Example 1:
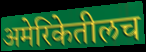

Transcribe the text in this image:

अमेरिकेतीलच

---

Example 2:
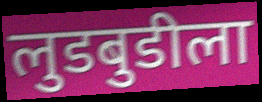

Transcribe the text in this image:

लुडबुडीला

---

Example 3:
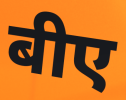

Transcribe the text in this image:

बीए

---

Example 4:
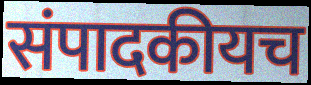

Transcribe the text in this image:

संपादकीयच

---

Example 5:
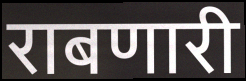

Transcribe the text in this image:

राबणारी